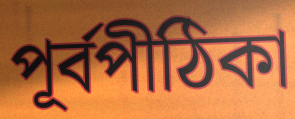
পূর্বপীঠিকা